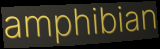
amphibian